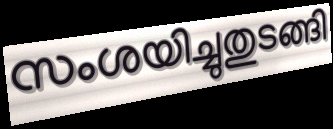
സംശയിച്ചുതുടങ്ങി